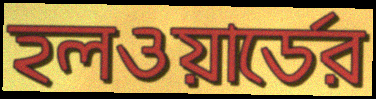
হলওয়ার্ডের